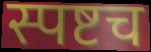
स्पष्टच